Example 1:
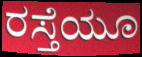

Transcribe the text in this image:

ರಸ್ತೆಯೂ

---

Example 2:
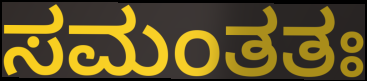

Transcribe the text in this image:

ಸಮಂತತಃ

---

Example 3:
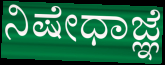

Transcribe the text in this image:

ನಿಷೇಧಾಜ್ಞೆ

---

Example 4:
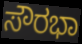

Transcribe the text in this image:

ಸೌರಭಾ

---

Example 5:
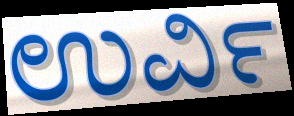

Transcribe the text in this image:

ಉರ್ವಿ